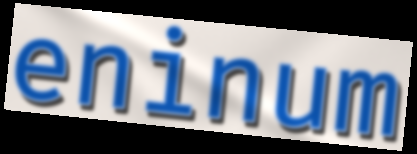
eninum